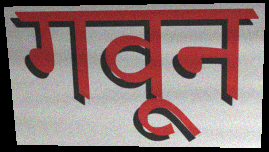
गवून